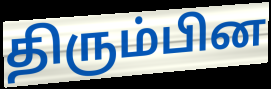
திரும்பின